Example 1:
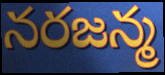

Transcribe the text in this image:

నరజన్మ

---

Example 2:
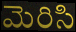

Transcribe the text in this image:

మెరిసి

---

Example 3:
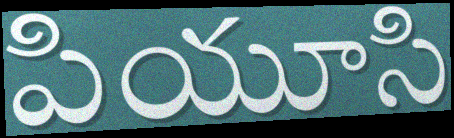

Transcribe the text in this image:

పియూసి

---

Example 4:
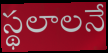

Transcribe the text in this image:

స్థలాలనే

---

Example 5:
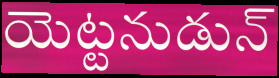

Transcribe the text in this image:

యెట్టనుడున్